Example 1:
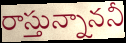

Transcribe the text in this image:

రాస్తున్నాననీ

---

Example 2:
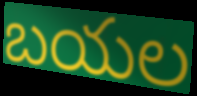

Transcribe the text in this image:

బయల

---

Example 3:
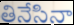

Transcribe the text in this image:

తినేసినా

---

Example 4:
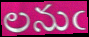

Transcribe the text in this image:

లనుఁ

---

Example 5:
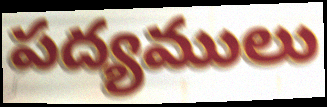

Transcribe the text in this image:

పద్యములు